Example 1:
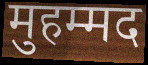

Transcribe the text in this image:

मुहम्मद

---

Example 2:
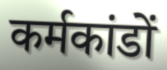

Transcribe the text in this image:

कर्मकांडों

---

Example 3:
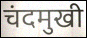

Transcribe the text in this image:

चंदमुखी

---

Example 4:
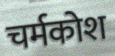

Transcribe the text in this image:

चर्मकोश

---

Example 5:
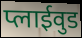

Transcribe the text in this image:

प्लाईवुड